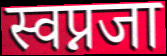
स्वप्नजा